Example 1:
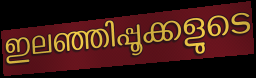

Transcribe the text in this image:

ഇലഞ്ഞിപ്പൂക്കളുടെ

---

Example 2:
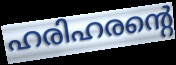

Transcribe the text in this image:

ഹരിഹരന്റെ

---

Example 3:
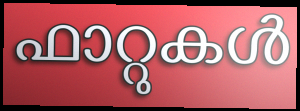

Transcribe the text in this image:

ഫാറ്റുകൾ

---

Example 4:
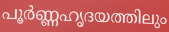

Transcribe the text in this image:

പൂർണ്ണഹൃദയത്തിലും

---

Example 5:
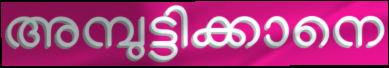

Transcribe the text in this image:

അമ്പുട്ടിക്കാനെ